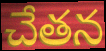
చేతన